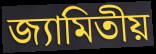
জ্যামিতীয়